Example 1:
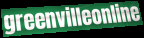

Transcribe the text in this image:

greenvilleonline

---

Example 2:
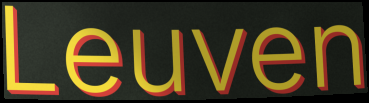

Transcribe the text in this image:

Leuven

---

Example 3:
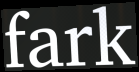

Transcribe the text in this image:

fark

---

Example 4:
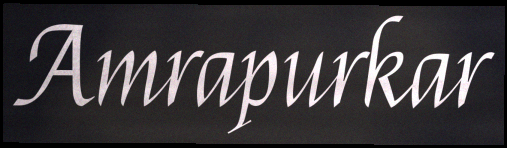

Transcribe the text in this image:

Amrapurkar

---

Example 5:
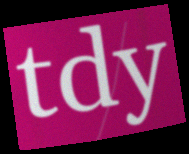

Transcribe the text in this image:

tdy